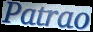
Patrao